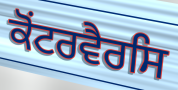
ਕੋਂਟਰਵੈਰਸਿ